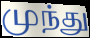
முந்து